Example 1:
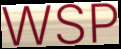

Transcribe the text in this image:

WSP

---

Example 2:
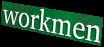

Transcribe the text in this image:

workmen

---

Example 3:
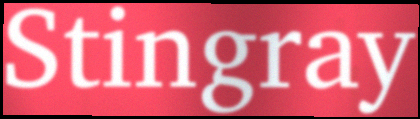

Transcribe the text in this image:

Stingray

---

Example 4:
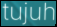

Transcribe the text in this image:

tujuh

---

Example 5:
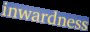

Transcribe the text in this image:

inwardness